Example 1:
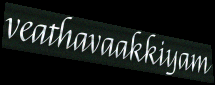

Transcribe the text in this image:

veathavaakkiyam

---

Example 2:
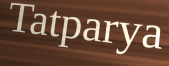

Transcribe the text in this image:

Tatparya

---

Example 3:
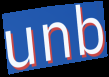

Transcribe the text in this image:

unb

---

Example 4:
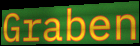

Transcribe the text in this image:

Graben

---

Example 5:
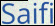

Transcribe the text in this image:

Saifi